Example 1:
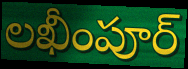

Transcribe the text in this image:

లఖీంపూర్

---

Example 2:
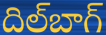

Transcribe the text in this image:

దిల్‌బాగ్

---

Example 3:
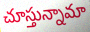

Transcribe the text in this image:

చూస్తున్నామా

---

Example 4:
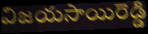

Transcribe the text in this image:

విజయసాయిరెడ్డి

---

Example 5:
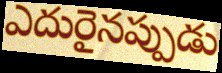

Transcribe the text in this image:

ఎదురైనప్పుడు